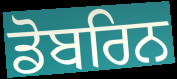
ਡੋਬਰਿਨ